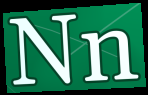
Nn